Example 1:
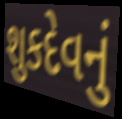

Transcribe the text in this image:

શુકદેવનું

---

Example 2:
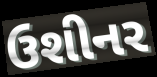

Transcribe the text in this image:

ઉશીનર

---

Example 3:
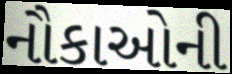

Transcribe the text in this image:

નૌકાઓની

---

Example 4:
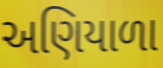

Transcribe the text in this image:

અણિયાળા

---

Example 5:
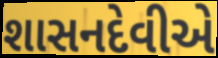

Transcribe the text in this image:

શાસનદેવીએ